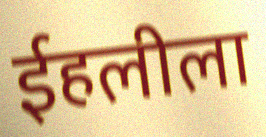
ईहलीला